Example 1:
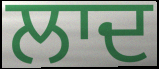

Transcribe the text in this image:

ਲਾਦ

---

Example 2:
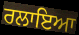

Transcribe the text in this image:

ਰਲਾਇਆ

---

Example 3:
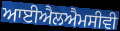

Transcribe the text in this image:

ਆਈਐਲਐਮਸੀਵੀ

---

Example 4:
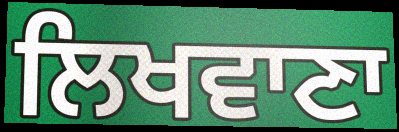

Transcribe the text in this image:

ਲਿਖਵਾਣਾ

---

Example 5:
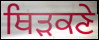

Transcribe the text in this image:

ਥਿੜਕਣੇ